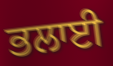
ਭਲਾਈ